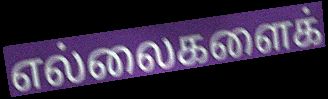
எல்லைகளைக்